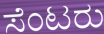
ಸೆಂಟರು